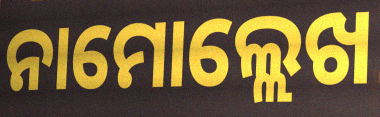
ନାମୋଲ୍ଲେଖ